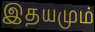
இதயமும்